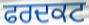
ਫਰਦਕਟ